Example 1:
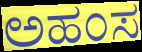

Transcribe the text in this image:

ಅಹಂಸ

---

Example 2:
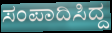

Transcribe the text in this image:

ಸಂಪಾದಿಸಿದ್ದ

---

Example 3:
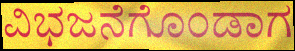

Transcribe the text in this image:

ವಿಭಜನೆಗೊಂಡಾಗ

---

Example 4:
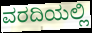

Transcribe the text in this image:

ವರದಿಯಲ್ಲಿ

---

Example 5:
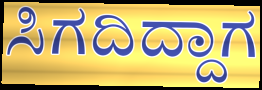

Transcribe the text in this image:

ಸಿಗದಿದ್ದಾಗ